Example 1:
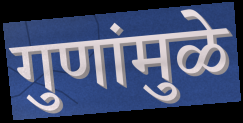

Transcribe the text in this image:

गुणांमुळे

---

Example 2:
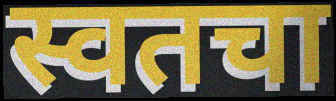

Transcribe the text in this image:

स्वतचा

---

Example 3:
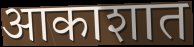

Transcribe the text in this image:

आकाशात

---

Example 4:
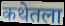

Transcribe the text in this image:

कथेतला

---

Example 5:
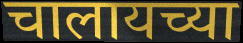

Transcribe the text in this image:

चालायच्या